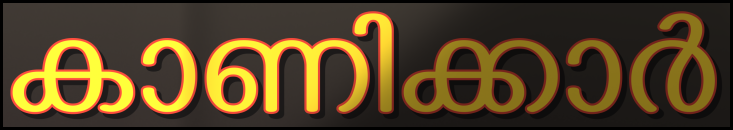
കാണിക്കാർ